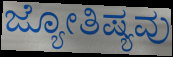
ಜ್ಯೋತಿಷ್ಯವು